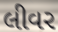
લીવર